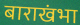
बाराखंभा